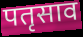
पतृसाव